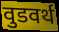
वुडवर्थ